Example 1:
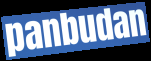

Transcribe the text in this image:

panbudan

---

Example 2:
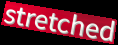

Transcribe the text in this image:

stretched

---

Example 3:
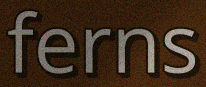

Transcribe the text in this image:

ferns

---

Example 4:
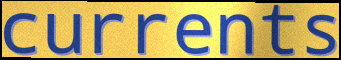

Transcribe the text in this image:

currents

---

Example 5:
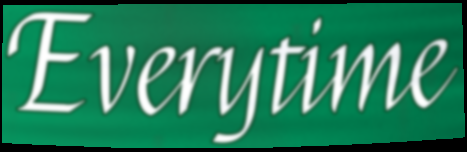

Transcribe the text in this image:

Everytime